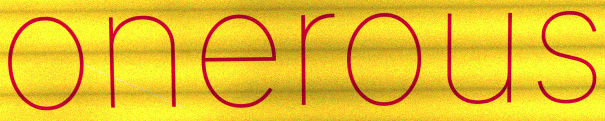
onerous